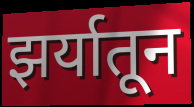
झर्यातून